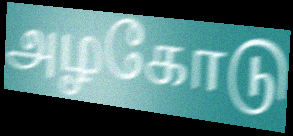
அழகோடு